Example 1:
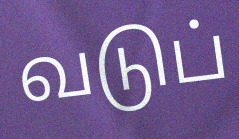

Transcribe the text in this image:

வடுப்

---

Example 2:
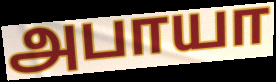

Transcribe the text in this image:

அபாயா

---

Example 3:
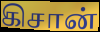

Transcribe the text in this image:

கிசான்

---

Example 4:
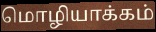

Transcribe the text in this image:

மொழியாக்கம்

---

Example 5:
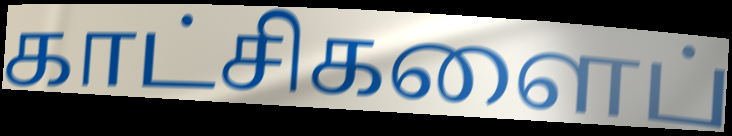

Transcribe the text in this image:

காட்சிகளைப்